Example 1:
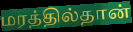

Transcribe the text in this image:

மரத்தில்தான்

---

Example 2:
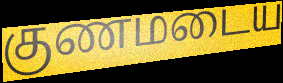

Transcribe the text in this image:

குணமடைய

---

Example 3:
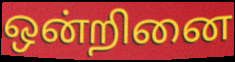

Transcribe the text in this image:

ஒன்றினை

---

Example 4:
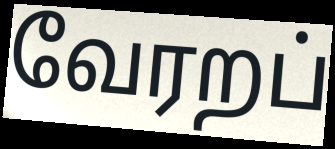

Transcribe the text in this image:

வேரறப்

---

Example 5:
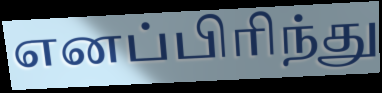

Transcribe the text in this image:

எனப்பிரிந்து